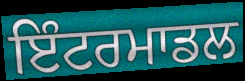
ਇੰਟਰਮਾਡਲ